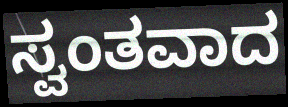
ಸ್ವಂತವಾದ